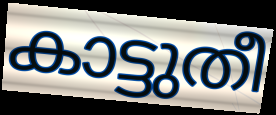
കാട്ടുതീ